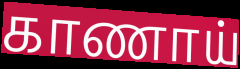
காணாய்